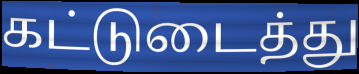
கட்டுடைத்து